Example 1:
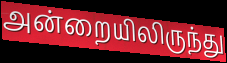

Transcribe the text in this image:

அன்றையிலிருந்து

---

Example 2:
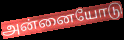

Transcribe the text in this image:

அன்னையோடு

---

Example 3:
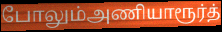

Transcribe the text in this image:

போலும்அணியாரூர்த்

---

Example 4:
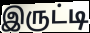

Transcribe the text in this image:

இருட்டி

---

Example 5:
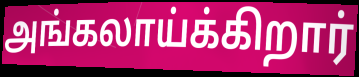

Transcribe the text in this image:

அங்கலாய்க்கிறார்